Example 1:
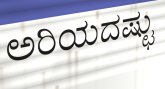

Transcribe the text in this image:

ಅರಿಯದಷ್ಟು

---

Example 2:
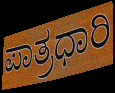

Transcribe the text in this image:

ಪಾತ್ರಧಾರಿ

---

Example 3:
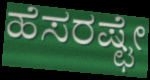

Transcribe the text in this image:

ಹೆಸರಷ್ಟೇ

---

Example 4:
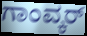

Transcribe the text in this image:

ಗಾಂವ್ಕರ್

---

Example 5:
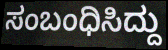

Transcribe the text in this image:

ಸಂಬಂಧಿಸಿದ್ದು